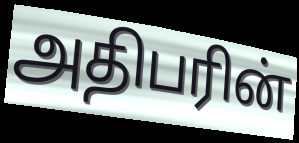
அதிபரின்